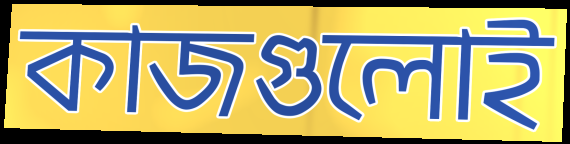
কাজগুলোই